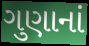
ગુણાનાં